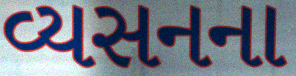
વ્યસનના